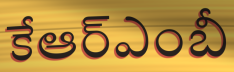
కేఆర్ఎంబీ